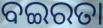
ବଇରତା